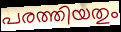
പരത്തിയതും